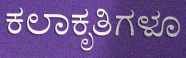
ಕಲಾಕೃತಿಗಳೂ